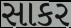
સાકર